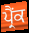
ਪ੍ਰੈਂਕ